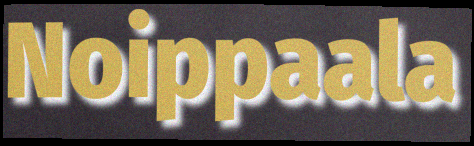
Noippaala